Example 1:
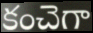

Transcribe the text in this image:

కంచెగా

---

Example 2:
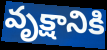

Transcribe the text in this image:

వృక్షానికి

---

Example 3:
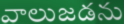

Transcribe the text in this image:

వాలుజడను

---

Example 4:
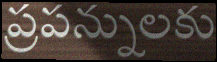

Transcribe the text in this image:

ప్రపన్నులకు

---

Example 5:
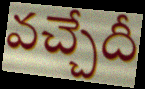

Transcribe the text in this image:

వచ్చేదీ